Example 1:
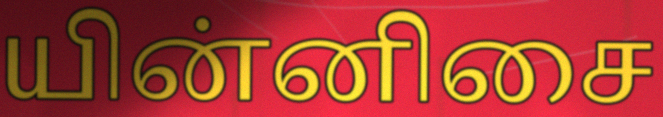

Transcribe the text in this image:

யின்னிசை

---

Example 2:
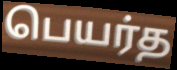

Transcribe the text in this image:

பெயர்த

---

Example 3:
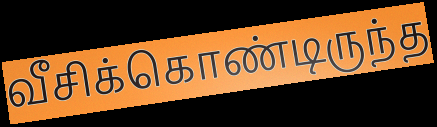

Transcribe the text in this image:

வீசிக்கொண்டிருந்த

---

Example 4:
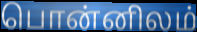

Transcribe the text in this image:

பொன்னிலம்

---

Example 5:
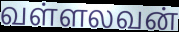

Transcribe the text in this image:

வள்ளலவன்